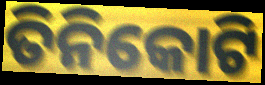
ତିନିକୋଟି